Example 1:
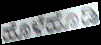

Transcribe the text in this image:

ಹೊಳೆಹೊಡಿ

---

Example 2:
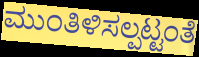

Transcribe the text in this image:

ಮುಂತಿಳಿಸಲ್ಪಟ್ಟಂತೆ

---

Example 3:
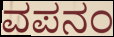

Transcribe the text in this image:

ವಪನಂ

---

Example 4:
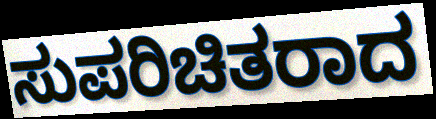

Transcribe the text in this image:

ಸುಪರಿಚಿತರಾದ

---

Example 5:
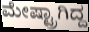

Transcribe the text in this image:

ಮೇಷ್ಟ್ರಾಗಿದ್ದ